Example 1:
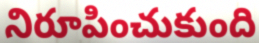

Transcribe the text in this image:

నిరూపించుకుంది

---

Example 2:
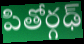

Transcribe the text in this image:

పితోర్గఢ్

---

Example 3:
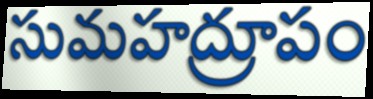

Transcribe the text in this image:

సుమహద్రూపం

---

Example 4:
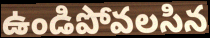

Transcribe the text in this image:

ఉండిపోవలసిన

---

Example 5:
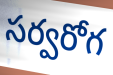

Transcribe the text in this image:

సర్వరోగ